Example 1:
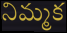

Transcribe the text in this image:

నిమ్మక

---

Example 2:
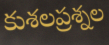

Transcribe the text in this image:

కుశలప్రశ్నల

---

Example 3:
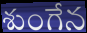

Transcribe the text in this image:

శుంగేన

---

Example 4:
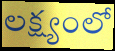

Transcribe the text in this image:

లక్ష్యంలో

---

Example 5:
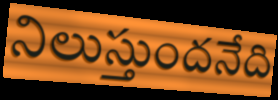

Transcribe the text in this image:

నిలుస్తుందనేది